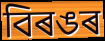
বিৰঙৰ